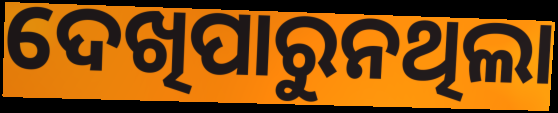
ଦେଖିପାରୁନଥିଲା